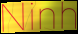
Ninh